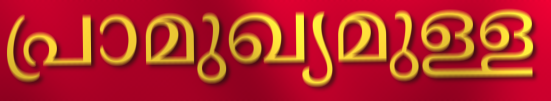
പ്രാമുഖ്യമുള്ള